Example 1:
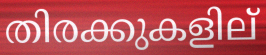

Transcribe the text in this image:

തിരക്കുകളില്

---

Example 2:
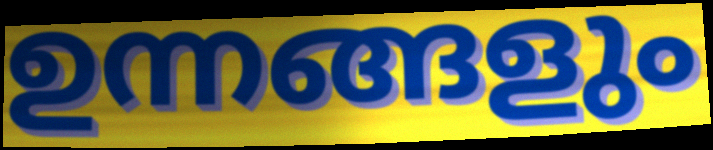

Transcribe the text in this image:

ഉന്നങ്ങളും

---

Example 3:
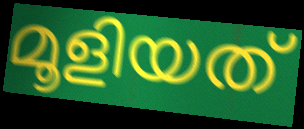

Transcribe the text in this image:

മൂളിയത്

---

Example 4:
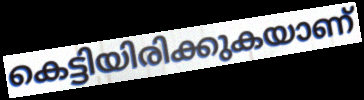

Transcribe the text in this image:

കെട്ടിയിരിക്കുകയാണ്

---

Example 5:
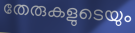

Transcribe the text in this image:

തേരുകളുടെയും